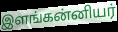
இளங்கன்னியர்